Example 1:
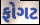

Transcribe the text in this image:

ફોગટ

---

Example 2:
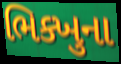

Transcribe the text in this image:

ભિક્ખુના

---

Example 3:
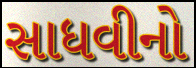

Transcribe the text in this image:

સાધવીનો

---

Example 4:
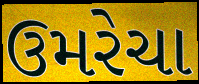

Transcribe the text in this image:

ઉમરેચા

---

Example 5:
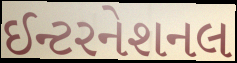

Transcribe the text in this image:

ઈન્ટરનેશનલ